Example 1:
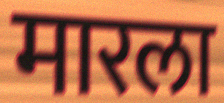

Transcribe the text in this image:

मारला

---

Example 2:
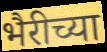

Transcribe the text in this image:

भैरीच्या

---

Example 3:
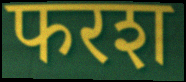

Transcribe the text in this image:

फरश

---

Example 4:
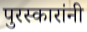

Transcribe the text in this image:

पुरस्कारांनी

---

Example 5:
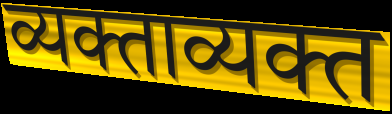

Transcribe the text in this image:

व्यक्ताव्यक्त